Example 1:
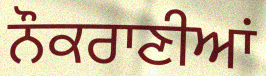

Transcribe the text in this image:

ਨੌਕਰਾਣੀਆਂ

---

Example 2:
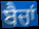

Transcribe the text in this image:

ਬੈਚਾਂ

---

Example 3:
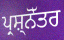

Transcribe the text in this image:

ਪ੍ਰਸ਼੍ਨੋੱਤਰ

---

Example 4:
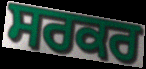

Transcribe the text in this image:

ਸਰਕਰ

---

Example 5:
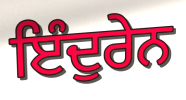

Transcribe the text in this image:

ਇੰਦੁਰੇਨ